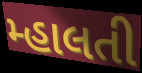
મ્હાલતી